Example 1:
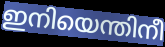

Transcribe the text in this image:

ഇനിയെന്തിനീ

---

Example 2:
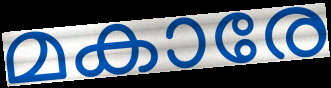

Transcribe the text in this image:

മകാരേ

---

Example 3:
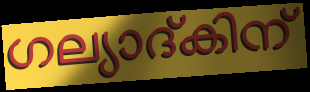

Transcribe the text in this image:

ഗല്യാദ്കിന്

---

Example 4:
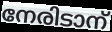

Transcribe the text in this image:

നേരിടാന്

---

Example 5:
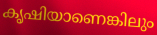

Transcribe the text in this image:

കൃഷിയാണെങ്കിലും